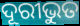
ଦୂରୀଭୁତ